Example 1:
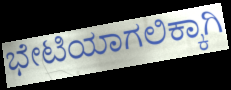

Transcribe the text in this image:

ಭೇಟಿಯಾಗಲಿಕ್ಕಾಗಿ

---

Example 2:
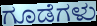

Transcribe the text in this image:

ಗೂಡೆಗಳು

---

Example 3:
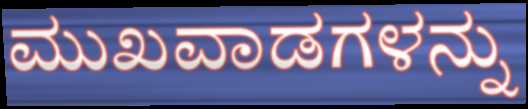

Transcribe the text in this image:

ಮುಖವಾಡಗಳನ್ನು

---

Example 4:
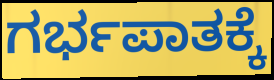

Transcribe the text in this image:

ಗರ್ಭಪಾತಕ್ಕೆ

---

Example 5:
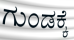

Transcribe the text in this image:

ಗುಂಡಕ್ಕೆ